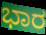
ಭಾರ